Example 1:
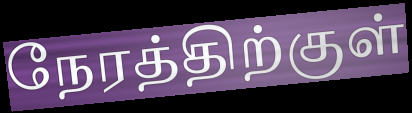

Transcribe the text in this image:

நேரத்திற்குள்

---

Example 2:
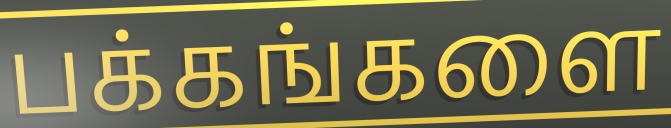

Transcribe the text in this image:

பக்கங்களை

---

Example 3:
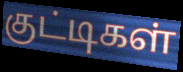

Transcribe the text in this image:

குட்டிகள்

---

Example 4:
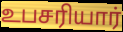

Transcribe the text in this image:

உபசரியார்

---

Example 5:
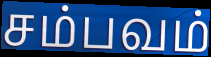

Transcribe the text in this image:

சம்பவம்